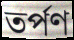
তৰ্পণ